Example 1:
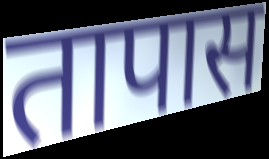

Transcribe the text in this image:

तापास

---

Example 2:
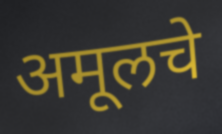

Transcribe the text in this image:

अमूलचे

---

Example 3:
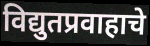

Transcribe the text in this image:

विद्युतप्रवाहाचे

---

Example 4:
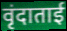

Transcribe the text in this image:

वृंदाताई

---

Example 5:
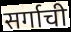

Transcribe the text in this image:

सर्गाची